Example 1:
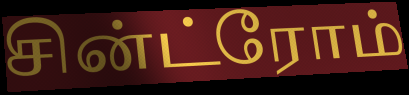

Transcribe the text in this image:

சின்ட்ரோம்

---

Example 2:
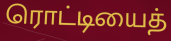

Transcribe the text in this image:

ரொட்டியைத்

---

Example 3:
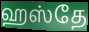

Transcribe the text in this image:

ஹஸ்தே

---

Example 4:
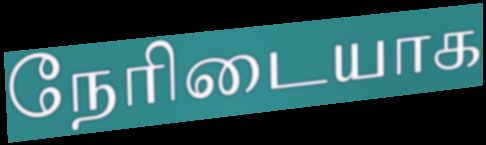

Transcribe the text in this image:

நேரிடையாக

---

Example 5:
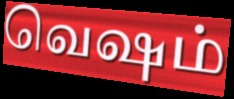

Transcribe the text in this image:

வெஷம்